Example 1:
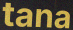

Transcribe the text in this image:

tana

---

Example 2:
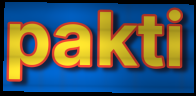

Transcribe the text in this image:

pakti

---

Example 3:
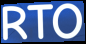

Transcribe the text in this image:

RTO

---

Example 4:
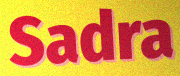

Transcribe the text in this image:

Sadra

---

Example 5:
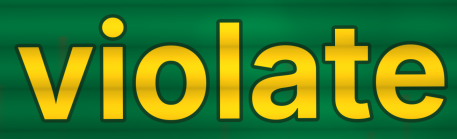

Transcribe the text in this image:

violate